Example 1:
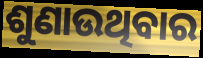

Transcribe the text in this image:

ଶୁଣାଉଥିବାର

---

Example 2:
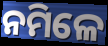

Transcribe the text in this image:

ନମିଳେ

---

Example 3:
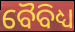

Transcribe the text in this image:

ବୈବିଧ୍ୟ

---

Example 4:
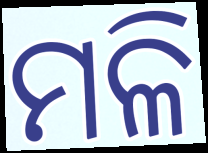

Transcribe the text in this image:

ମଳି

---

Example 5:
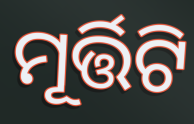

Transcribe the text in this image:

ମୂର୍ତ୍ତିଟି